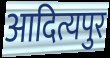
आदित्यपुर